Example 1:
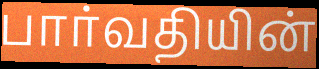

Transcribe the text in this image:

பார்வதியின்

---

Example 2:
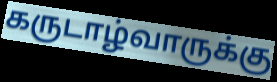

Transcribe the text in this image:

கருடாழ்வாருக்கு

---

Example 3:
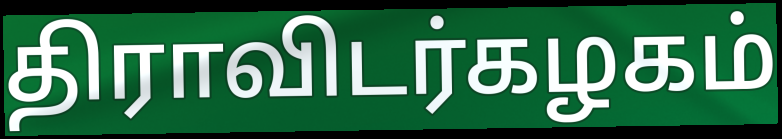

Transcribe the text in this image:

திராவிடர்கழகம்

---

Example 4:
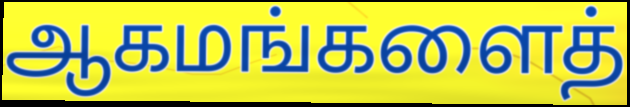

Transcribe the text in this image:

ஆகமங்களைத்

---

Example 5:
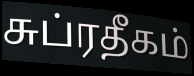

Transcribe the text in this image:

சுப்ரதீகம்